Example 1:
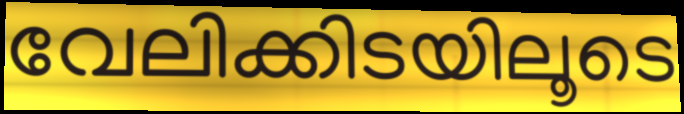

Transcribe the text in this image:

വേലിക്കിടയിലൂടെ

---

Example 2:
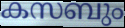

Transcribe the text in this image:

കസബും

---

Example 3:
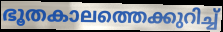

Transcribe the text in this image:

ഭൂതകാലത്തെക്കുറിച്ച്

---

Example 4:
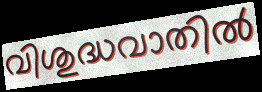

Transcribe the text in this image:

വിശുദ്ധവാതിൽ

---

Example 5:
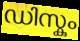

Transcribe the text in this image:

ഡിസ്കും